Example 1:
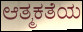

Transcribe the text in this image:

ಆತ್ಮಕತೆಯ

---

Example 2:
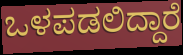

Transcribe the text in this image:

ಒಳಪಡಲಿದ್ದಾರೆ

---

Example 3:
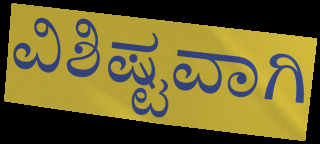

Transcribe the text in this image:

ವಿಶಿಷ್ಟವಾಗಿ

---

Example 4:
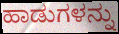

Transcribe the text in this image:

ಹಾಡುಗಳನ್ನು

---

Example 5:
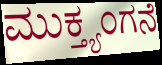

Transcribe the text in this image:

ಮುಕ್ತ್ಯಂಗನೆ